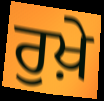
ਰੁਖ਼ੇ